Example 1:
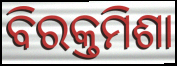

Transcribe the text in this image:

ବିରକ୍ତମିଶା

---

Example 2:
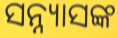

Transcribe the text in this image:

ସନ୍ନ୍ୟାସଙ୍କ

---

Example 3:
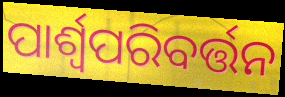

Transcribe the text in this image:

ପାର୍ଶ୍ଵପରିବର୍ତ୍ତନ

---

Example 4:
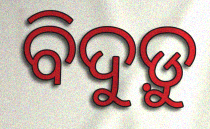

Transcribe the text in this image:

ବିଦୁଡ଼ୁ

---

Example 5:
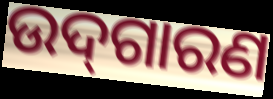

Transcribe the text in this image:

ଉଦ୍‌ଗାରଣ